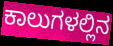
ಕಾಲುಗಳಲ್ಲಿನ